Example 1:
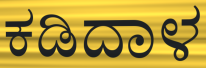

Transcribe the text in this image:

ಕಡಿದಾಳ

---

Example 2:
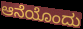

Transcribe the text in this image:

ಆನೆಯೊಂದು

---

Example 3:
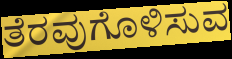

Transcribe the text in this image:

ತೆರವುಗೊಳಿಸುವ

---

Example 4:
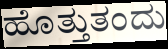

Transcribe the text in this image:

ಹೊತ್ತುತಂದು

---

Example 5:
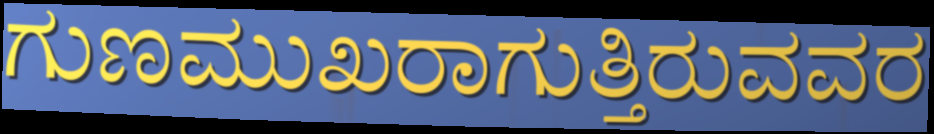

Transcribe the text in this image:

ಗುಣಮುಖರಾಗುತ್ತಿರುವವರ